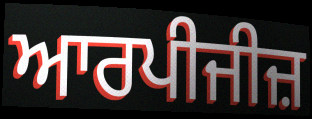
ਆਰਪੀਜੀਜ਼